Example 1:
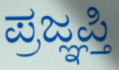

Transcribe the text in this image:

ಪ್ರಜ್ಞಪ್ತಿ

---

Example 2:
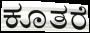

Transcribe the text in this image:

ಕೂತರೆ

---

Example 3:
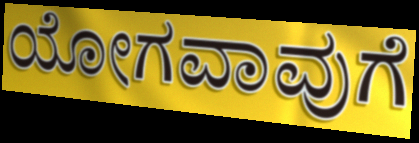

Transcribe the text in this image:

ಯೋಗವಾವುಗೆ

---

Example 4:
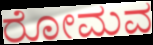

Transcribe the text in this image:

ರೋಮವ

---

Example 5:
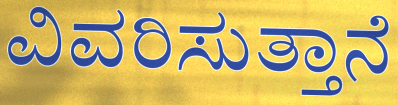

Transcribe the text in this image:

ವಿವರಿಸುತ್ತಾನೆ